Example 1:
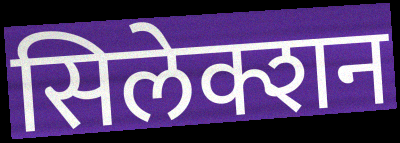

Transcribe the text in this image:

सिलेक्शन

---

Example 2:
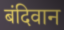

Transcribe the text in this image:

बंदिवान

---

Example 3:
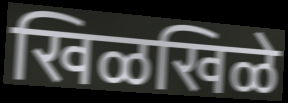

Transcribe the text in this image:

खिळखिळे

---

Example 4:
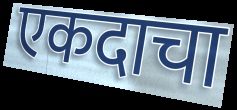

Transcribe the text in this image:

एकदाचा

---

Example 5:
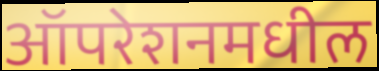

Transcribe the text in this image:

ऑपरेशनमधील